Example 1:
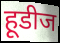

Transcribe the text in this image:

हूडीज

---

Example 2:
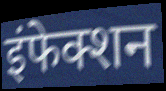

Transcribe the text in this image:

इंफेक्शन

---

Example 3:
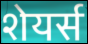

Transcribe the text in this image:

शेयर्स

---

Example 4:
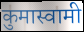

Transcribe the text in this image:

कुमास्वामी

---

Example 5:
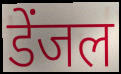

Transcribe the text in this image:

डेंजल